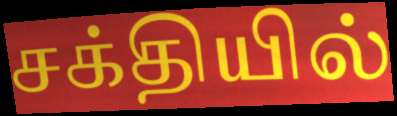
சக்தியில்